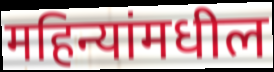
महिन्यांमधील